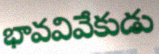
భావవివేకుడు